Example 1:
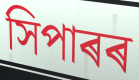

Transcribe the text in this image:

সিপাৰৰ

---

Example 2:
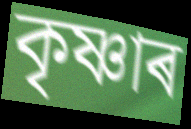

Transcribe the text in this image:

কৃষ্ণাৰ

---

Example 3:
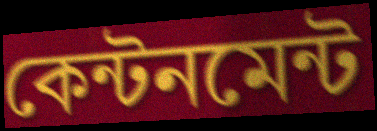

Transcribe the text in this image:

কেন্টনমেন্ট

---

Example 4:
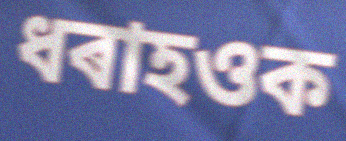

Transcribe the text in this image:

ধৰাহওক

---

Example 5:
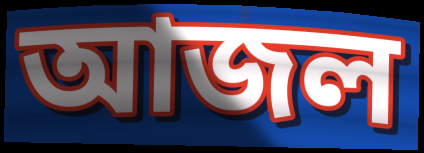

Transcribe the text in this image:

আজল